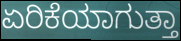
ಏರಿಕೆಯಾಗುತ್ತಾ